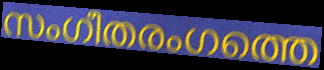
സംഗീതരംഗത്തെ